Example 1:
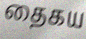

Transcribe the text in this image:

தைகய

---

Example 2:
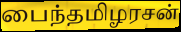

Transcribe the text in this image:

பைந்தமிழரசன்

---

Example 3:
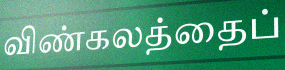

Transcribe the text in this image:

விண்கலத்தைப்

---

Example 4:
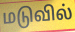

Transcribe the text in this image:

மடுவில்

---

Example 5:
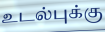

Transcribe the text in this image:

உடல்புக்கு